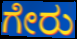
ಗೇರು